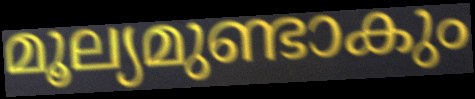
മൂല്യമുണ്ടാകും